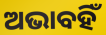
ଅଭାବହିଁ